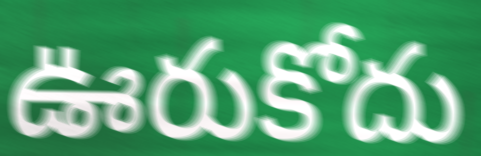
ఊరుకోదు